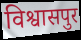
विश्वासपुर